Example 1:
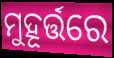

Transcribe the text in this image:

ମୁହୂର୍ତ୍ତରେ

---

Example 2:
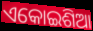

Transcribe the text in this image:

ଏକୋଇଶିଆ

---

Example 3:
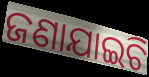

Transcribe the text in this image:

ଜଣାଯାଇଚି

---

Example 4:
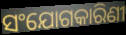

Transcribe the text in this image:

ସଂଯୋଗକାରିଣୀ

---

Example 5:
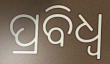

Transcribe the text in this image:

ପ୍ରବିଧ୍ଵ